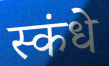
स्कंधे